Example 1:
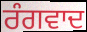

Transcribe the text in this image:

ਰੰਗਵਾਦ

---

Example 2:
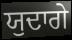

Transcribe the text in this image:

ਯੁਦਾਗੇ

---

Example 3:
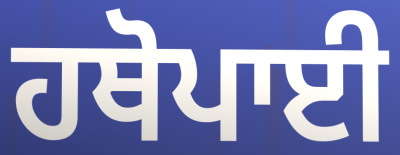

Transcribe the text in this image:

ਹਥੋਪਾਈ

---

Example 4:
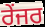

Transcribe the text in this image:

ਰੇਂਜਰ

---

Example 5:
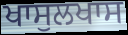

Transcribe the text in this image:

ਖਾਸੁਲਖਾਸ